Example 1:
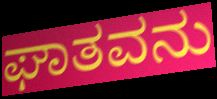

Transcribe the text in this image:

ಘಾತವನು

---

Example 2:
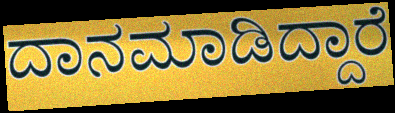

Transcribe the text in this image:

ದಾನಮಾಡಿದ್ದಾರೆ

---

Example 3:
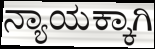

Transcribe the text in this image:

ನ್ಯಾಯಕ್ಕಾಗಿ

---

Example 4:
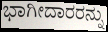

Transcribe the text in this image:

ಭಾಗೀದಾರರನ್ನು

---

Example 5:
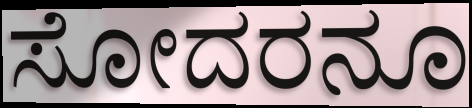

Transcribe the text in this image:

ಸೋದರನೂ